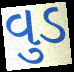
વુડ